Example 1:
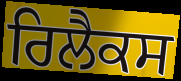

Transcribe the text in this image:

ਰਿਲੈਕਸ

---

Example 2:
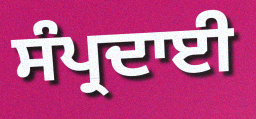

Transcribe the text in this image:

ਸੰਪ੍ਰਦਾਈ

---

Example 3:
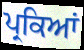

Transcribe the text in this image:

ਪ੍ਰਕਿਆਂ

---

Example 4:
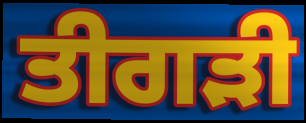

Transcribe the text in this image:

ਤੀਗੜੀ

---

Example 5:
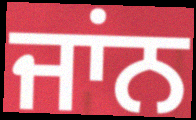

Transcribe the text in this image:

ਜਾਂਨ